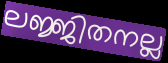
ലജ്ജിതനല്ല